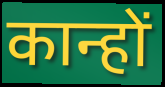
कान्हों